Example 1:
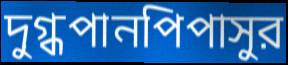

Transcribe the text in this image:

দুগ্ধপানপিপাসুর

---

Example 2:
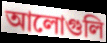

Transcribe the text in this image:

আলোগুলি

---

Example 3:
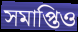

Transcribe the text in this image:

সমাপ্তিও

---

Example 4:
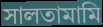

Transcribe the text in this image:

সালতামামি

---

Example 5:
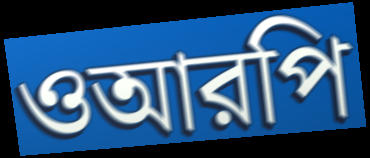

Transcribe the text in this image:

ওআরপি